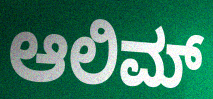
ಆಲಿಮ್